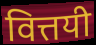
वित्तयी